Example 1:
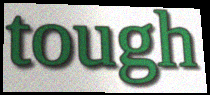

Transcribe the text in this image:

tough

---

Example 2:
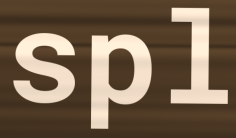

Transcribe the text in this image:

spl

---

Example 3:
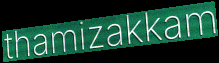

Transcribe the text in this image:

thamizakkam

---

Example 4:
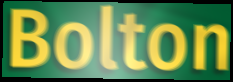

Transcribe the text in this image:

Bolton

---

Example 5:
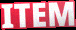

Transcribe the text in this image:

ITEM